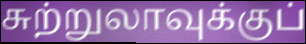
சுற்றுலாவுக்குப்